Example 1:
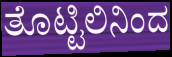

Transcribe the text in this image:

ತೊಟ್ಟಿಲಿನಿಂದ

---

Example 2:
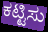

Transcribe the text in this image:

ಕಟ್ಟಿಸು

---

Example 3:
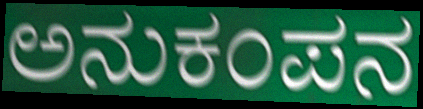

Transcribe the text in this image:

ಅನುಕಂಪನ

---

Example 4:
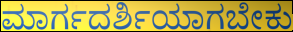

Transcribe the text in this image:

ಮಾರ್ಗದರ್ಶಿಯಾಗಬೇಕು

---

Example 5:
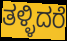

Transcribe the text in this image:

ತಳ್ಳಿದರೆ